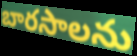
బారసాలను